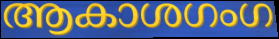
ആകാശഗംഗ